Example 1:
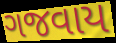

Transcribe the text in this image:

ગજવાય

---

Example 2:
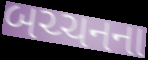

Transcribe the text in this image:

બચ્ચનના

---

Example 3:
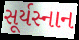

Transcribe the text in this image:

સૂર્યસ્નાન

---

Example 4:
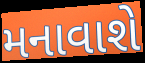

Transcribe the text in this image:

મનાવાશે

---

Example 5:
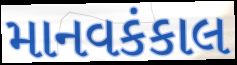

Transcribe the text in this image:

માનવકંકાલ